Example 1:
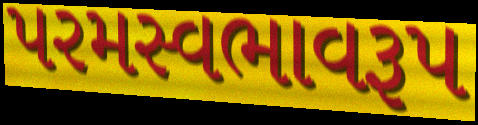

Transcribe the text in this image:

પરમસ્વભાવરૂપ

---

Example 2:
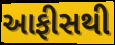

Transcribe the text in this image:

આફીસથી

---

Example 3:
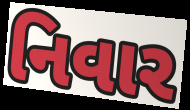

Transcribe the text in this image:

નિવાર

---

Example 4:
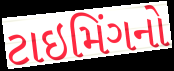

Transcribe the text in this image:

ટાઇમિંગનો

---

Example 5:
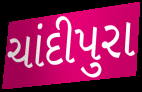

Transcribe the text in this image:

ચાંદીપુરા